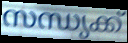
സന്ധ്യക്ക്